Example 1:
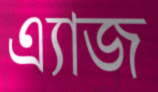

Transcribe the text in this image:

এ্যাজ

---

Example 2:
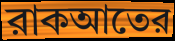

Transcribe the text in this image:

রাকআতের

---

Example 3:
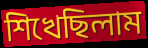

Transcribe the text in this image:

শিখেছিলাম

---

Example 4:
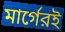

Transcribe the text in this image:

মার্গেরই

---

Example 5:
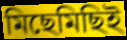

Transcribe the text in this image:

মিছেমিছিই